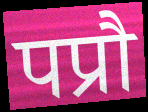
पप्रौ